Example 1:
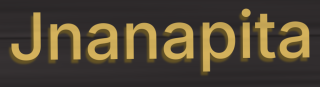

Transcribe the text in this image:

Jnanapita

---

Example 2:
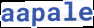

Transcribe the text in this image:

aapale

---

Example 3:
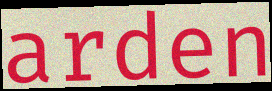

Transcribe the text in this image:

arden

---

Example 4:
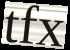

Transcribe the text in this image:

tfx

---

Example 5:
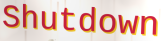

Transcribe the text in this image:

Shutdown